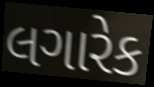
લગારેક